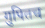
गुपितच